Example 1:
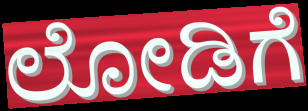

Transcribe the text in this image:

ಲೋಡಿಗೆ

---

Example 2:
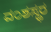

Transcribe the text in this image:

ವಂಶಸ್ಥರ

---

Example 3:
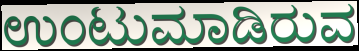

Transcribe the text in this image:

ಉಂಟುಮಾಡಿರುವ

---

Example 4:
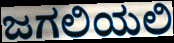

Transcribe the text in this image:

ಜಗಲಿಯಲಿ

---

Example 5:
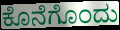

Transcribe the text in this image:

ಕೊನೆಗೊಂದು